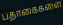
பதாகைகளை